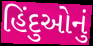
હિંદુઓનું